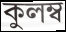
কুলম্ব